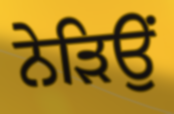
ਨੇੜਿਉਂ